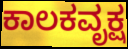
ಕಾಲಕವೃಕ್ಷ